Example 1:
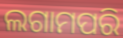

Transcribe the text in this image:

ଲଗାମପରି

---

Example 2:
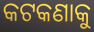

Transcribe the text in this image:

କଟକଣାକୁ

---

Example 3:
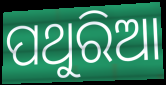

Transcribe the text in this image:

ପଥୁରିଆ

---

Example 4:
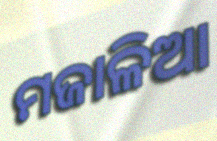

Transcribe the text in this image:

ମଜାଳିଆ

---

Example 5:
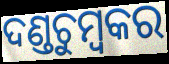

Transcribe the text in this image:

ଦଣ୍ଡଚୁମ୍ବକର